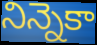
నిన్నెకా